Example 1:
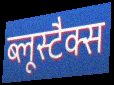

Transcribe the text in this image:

ब्लूस्टैक्स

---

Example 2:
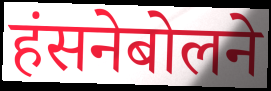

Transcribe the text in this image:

हंसनेबोलने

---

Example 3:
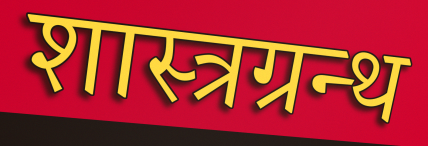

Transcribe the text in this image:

शास्त्रग्रन्थ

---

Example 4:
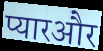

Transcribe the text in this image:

प्यारऔर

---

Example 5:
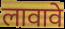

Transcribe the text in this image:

लावावे